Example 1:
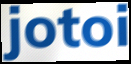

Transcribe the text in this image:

jotoi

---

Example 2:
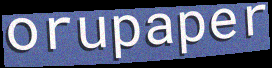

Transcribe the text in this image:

orupaper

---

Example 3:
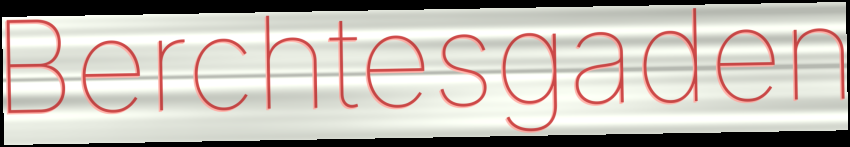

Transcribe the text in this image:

Berchtesgaden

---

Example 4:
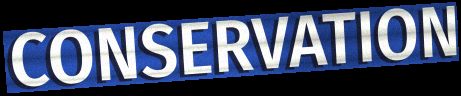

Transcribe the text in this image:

CONSERVATION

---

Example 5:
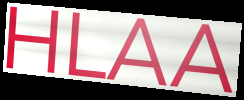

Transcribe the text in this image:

HLAA